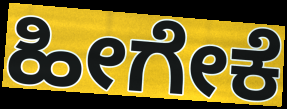
ಹೀಗೇಕೆ